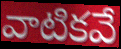
వాటికవే